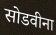
सोडवीना